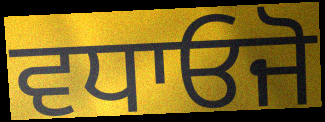
ਵਧਾਓਜੋ